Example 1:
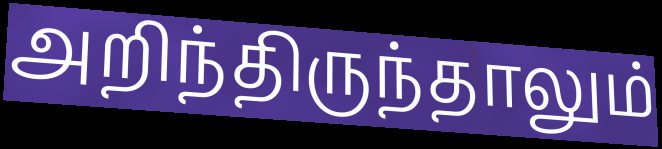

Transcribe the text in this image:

அறிந்திருந்தாலும்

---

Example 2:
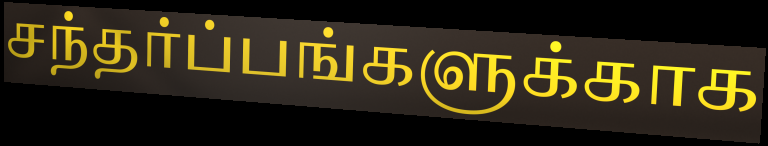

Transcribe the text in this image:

சந்தர்ப்பங்களுக்காக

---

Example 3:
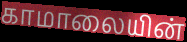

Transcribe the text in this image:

காமாலையின்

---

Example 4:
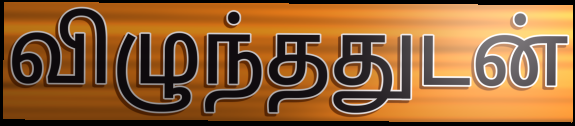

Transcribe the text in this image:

விழுந்ததுடன்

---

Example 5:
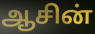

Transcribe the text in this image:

ஆசின்